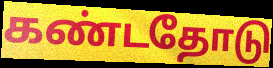
கண்டதோடு